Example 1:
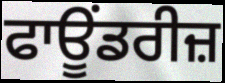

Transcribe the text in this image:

ਫਾਊਂਡਰੀਜ਼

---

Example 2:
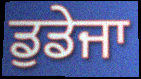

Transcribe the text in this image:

ਡੁਡੇਜਾ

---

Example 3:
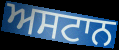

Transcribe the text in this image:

ਅਸਟਾਨ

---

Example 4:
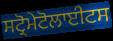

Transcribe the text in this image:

ਸਟ੍ਰੋਮੇਟੋਲਾਈਟਸ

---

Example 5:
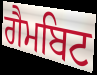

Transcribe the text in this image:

ਗੈਮਬਿਟ